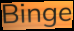
Binge